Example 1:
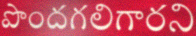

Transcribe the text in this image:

పొందగలిగారని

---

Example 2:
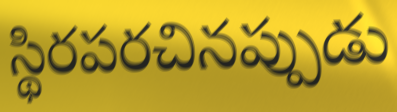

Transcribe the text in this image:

స్థిరపరచినప్పుడు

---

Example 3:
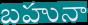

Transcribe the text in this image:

బహునా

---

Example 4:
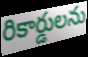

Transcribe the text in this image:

రికార్డులను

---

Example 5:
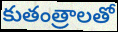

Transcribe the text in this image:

కుతంత్రాలతో